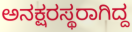
ಅನಕ್ಷರಸ್ಥರಾಗಿದ್ದ